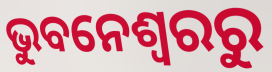
ଭୁବନେଶ୍ୱରରୁ